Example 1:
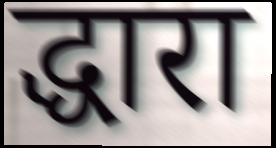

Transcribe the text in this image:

द्धारा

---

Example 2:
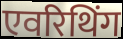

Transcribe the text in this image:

एवरिथिंग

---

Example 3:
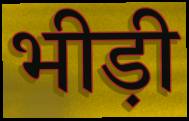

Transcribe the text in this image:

भीड़ी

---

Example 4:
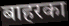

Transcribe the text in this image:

बाहरका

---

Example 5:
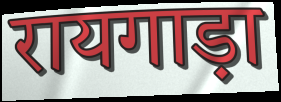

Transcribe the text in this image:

रायगाड़ा